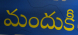
మందుకీ